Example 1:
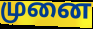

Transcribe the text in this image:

முனை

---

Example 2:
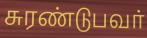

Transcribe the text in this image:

சுரண்டுபவர்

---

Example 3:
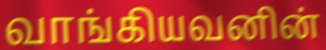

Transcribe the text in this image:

வாங்கியவனின்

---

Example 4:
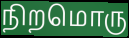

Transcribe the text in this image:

நிறமொரு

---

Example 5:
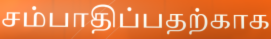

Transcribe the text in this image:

சம்பாதிப்பதற்காக